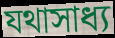
যথাসাধ্য